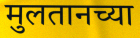
मुलतानच्या